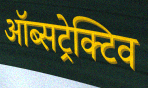
ऑब्सट्रेक्टिव